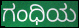
ಗಂಧಿಯ